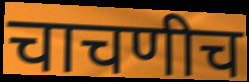
चाचणीच